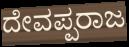
ದೇವಪ್ಪರಾಜ